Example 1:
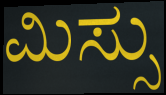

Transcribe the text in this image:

ಮಿಸ್ಸು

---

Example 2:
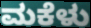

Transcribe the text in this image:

ಮಕೆಳು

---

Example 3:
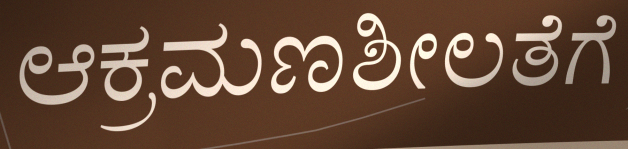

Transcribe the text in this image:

ಆಕ್ರಮಣಶೀಲತೆಗೆ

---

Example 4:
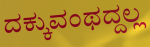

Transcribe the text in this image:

ದಕ್ಕುವಂಥದ್ದಲ್ಲ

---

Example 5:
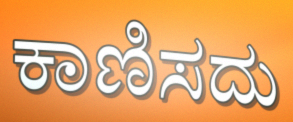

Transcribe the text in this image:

ಕಾಣಿಸದು